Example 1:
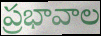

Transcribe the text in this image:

ప్రభావాల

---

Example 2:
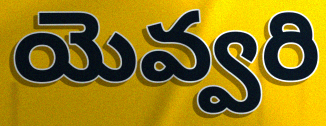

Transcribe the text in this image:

యెవ్వరి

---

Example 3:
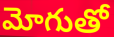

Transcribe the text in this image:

మోగుతో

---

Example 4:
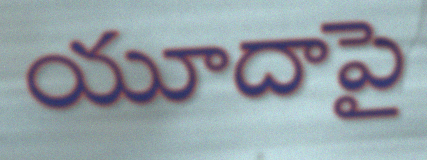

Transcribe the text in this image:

యూదాపై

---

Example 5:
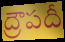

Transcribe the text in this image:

ద్రౌపదీ